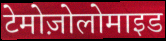
टेमोज़ोलोमाइड